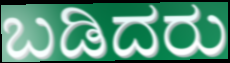
ಬಡಿದರು